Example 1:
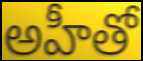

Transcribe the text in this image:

అహీతో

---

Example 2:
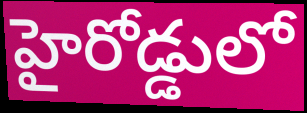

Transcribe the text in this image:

హైరోడ్డులో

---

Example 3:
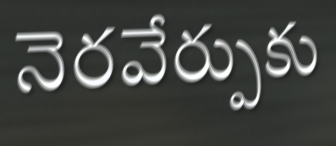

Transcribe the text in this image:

నెరవేర్పుకు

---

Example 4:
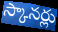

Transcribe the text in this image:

స్కానర్లు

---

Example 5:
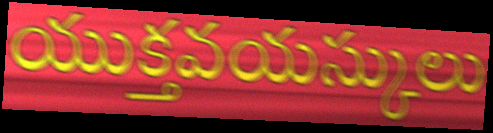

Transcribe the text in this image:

యుక్తవయస్కులు